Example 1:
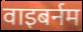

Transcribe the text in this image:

वाइबर्नम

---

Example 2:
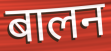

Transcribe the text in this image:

बालन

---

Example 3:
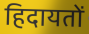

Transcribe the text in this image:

हिदायतों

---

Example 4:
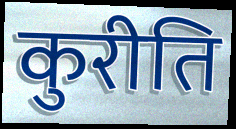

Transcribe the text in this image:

कुरीति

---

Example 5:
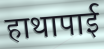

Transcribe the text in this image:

हाथापाई